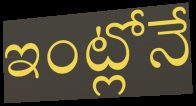
ఇంట్లోనే